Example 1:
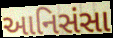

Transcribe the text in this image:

આનિસંસા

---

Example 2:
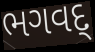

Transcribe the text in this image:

ભગવદ્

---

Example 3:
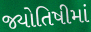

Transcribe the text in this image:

જ્યોતિષીમાં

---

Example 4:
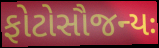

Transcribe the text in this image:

ફોટોસૌજન્યઃ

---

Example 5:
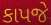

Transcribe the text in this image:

કાપજે